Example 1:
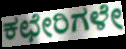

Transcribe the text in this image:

ಕಛೇರಿಗಳೇ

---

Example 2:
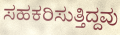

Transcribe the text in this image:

ಸಹಕರಿಸುತ್ತಿದ್ದವು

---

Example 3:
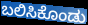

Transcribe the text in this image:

ಬಲಿಸಿಕೊಂಡು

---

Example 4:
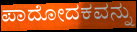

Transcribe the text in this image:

ಪಾದೋದಕವನ್ನು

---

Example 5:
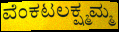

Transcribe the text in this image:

ವೆಂಕಟಲಕ್ಷ್ಮಮ್ಮ